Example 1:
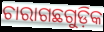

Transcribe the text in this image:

ଚାରାଗଛଗୁଡ଼ିକ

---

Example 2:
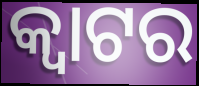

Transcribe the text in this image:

କ୍ୱାଟର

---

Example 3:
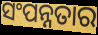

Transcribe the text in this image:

ସଂପନ୍ନତାର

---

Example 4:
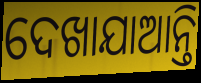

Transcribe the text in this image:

ଦେଖାଯାଆନ୍ତି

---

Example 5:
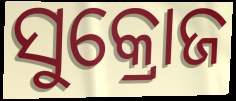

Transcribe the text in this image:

ସୁକ୍ରୋଜ